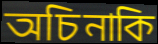
অচিনাকি